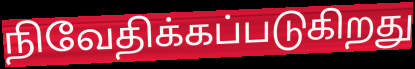
நிவேதிக்கப்படுகிறது